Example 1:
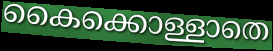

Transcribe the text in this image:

കൈക്കൊള്ളാതെ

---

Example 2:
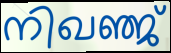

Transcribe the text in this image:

നിഖഞ്ജ്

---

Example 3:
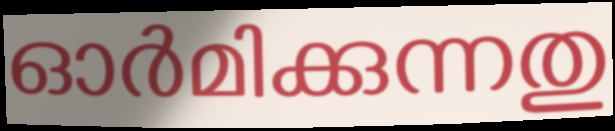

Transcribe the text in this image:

ഓർമിക്കുന്നതു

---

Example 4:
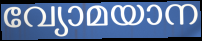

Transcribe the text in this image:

വ്യോമയാന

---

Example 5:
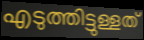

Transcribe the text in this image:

എടുത്തിട്ടുള്ളത്